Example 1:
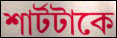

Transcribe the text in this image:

শার্টটাকে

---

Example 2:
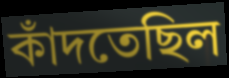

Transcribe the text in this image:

কাঁদতেছিল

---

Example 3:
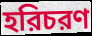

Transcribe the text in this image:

হরিচরণ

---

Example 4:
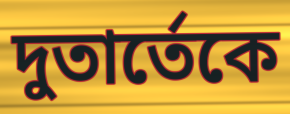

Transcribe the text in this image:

দুতার্তেকে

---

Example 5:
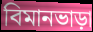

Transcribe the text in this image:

বিমানভাড়া